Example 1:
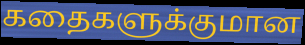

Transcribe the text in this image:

கதைகளுக்குமான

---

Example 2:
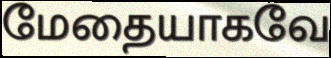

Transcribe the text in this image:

மேதையாகவே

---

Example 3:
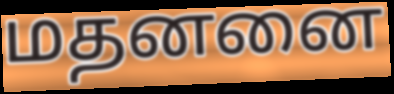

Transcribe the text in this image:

மதனனை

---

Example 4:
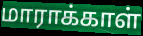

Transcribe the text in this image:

மாராக்காள்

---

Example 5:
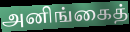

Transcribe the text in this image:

அனிங்கைத்